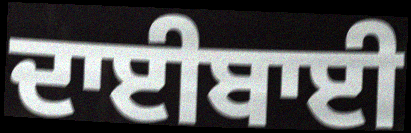
ਦਾਈਬਾਈ